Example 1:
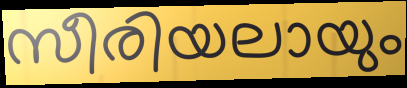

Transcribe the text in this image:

സീരിയലായും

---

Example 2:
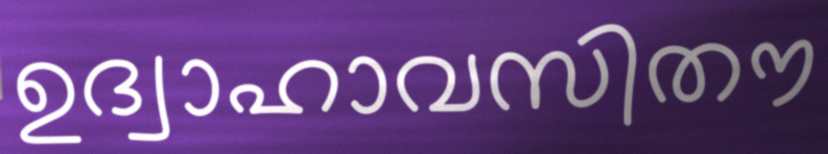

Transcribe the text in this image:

ഉദ്വാഹാവസിതൗ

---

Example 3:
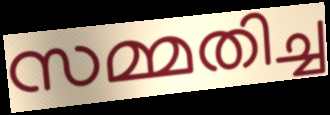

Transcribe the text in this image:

സമ്മതിച്ച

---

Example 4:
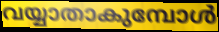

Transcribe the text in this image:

വയ്യാതാകുമ്പോൾ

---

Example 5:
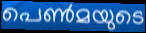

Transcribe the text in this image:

പെൺമയുടെ